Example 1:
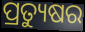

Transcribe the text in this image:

ପ୍ରତ୍ୟୁଷର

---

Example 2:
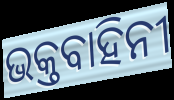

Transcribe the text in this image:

ଭକ୍ତବାହିନୀ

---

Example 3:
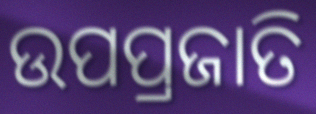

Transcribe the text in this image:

ଉପପ୍ରଜାତି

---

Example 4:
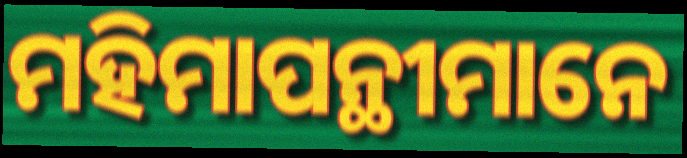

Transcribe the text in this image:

ମହିମାପନ୍ଥୀମାନେ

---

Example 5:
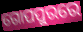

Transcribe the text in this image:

ଗୋପପୁରରେ